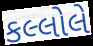
કલ્લોલે